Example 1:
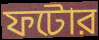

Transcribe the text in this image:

ফটোর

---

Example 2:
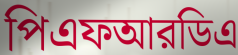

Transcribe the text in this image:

পিএফআরডিএ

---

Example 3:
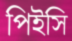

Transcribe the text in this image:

পিইসি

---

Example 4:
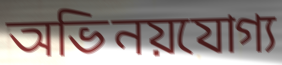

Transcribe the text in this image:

অভিনয়যোগ্য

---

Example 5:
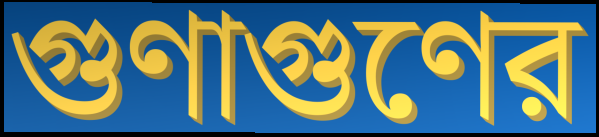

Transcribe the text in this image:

গুণাগুণের